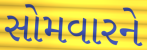
સોમવારને